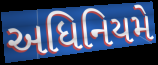
અધિનિયમે